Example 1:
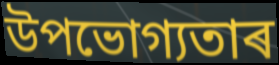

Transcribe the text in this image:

উপভোগ্যতাৰ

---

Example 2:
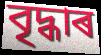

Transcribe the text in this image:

বৃদ্ধাৰ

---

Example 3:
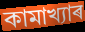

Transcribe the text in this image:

কামাখ্যাৰ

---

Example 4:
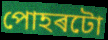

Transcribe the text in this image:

পোহৰটো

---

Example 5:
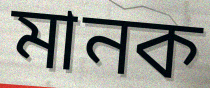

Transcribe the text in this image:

মানক